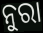
ନୁରା